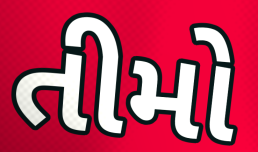
તીમો